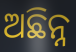
ଅଛିନ୍ନ